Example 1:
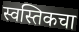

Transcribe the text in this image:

स्वस्तिकचा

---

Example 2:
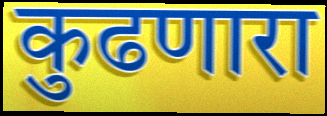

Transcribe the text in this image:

कुढणारा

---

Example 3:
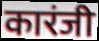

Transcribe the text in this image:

कारंजी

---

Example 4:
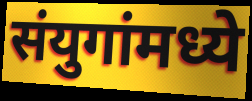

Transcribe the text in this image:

संयुगांमध्ये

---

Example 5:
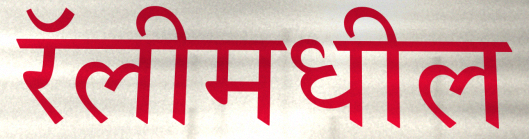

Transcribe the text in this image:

रॅलीमधील